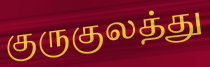
குருகுலத்து